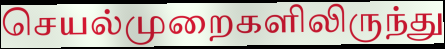
செயல்முறைகளிலிருந்து